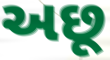
અછૂ